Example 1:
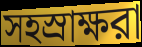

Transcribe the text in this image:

সহস্রাক্ষরা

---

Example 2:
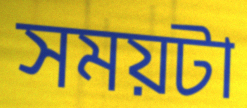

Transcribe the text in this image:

সময়টা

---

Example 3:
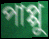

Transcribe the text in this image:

পাপ্পু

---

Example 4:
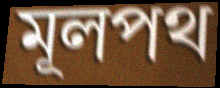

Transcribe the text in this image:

মূলপথ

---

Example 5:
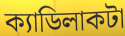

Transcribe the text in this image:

ক্যাডিলাকটা